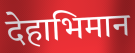
देहाभिमान